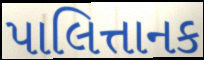
પાલિત્તાનક